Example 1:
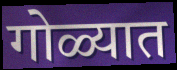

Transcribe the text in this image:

गोळ्यात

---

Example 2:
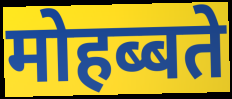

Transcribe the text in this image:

मोहब्बते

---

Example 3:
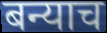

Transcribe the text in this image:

बन्याच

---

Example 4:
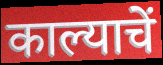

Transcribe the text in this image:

काल्याचें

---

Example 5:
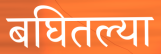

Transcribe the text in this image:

बघितल्या